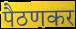
पैठणकर